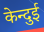
केन्दुई